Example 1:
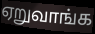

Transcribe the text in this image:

ஏறுவாங்க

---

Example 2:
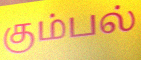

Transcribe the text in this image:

கும்பல்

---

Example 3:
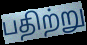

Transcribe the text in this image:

பதிற்று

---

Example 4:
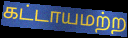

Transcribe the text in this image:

கட்டாயமற்ற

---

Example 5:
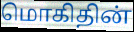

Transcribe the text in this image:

மொகிதின்